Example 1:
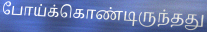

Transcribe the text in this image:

போய்க்கொண்டிருந்தது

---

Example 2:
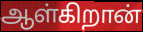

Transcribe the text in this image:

ஆள்கிறான்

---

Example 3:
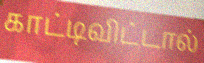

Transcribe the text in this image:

காட்டிவிட்டால்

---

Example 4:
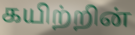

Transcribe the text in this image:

கயிற்றின்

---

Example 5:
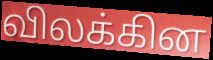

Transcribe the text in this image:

விலக்கின